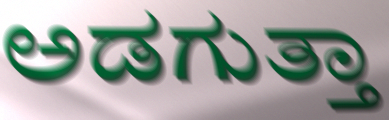
ಅಡಗುತ್ತಾ